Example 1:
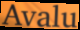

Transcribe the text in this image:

Avalu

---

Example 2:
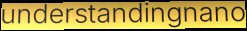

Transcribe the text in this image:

understandingnano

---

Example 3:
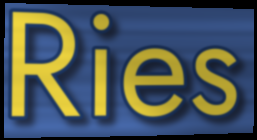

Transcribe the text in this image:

Ries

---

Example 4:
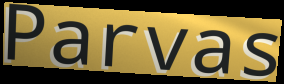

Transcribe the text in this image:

Parvas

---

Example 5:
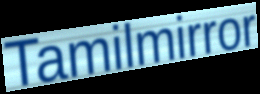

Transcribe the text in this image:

Tamilmirror